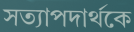
সত্যাপদার্থকে